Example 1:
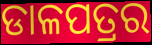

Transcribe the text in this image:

ଡାଳପତ୍ରର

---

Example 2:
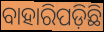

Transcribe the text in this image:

ବାହାରିପଡ଼ିଛି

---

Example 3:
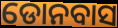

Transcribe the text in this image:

ଡୋନବାସ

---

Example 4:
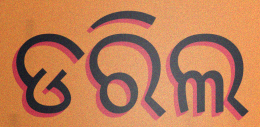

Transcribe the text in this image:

ଡରିଲ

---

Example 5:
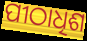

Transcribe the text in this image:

ପୀଠାଧିଶ